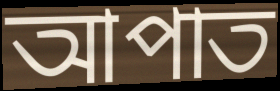
আপাত